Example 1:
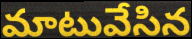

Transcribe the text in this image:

మాటువేసిన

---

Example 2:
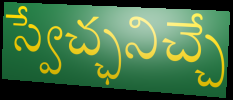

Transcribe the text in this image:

స్వేచ్ఛనిచ్చే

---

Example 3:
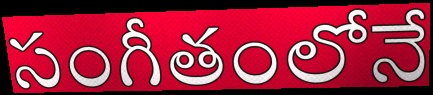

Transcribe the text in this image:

సంగీతంలోనే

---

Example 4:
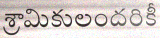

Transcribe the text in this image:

శ్రామికులందరికీ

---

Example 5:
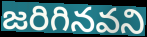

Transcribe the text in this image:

జరిగినవని